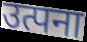
उत्पना